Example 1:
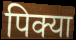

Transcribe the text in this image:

पिक्या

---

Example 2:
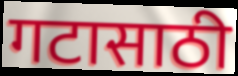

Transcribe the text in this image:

गटासाठी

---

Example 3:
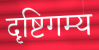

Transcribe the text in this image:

दृष्टिगम्य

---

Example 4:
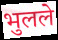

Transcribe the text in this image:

भुलले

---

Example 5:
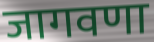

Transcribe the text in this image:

जागवणा